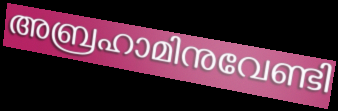
അബ്രഹാമിനുവേണ്ടി